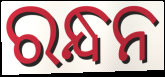
ରନ୍ଧନ